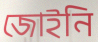
জোইনি